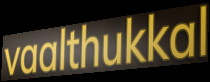
vaalthukkal